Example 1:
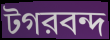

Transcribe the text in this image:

টগরবন্দ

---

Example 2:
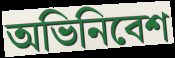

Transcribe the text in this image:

অভিনিবেশ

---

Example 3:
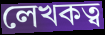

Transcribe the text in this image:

লেখকত্ব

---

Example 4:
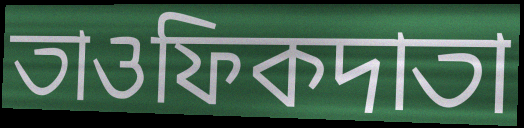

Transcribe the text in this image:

তাওফিকদাতা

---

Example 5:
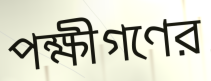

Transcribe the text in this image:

পক্ষীগণের